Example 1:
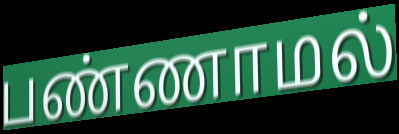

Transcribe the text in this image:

பண்ணாமல்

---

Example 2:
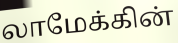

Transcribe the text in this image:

லாமேக்கின்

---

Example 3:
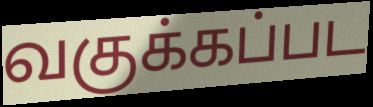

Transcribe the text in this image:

வகுக்கப்பட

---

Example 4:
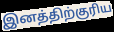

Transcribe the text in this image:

இனத்திற்குரிய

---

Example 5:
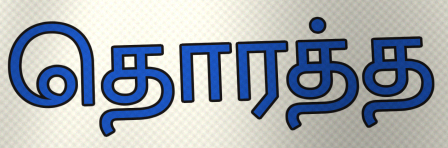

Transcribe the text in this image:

தொரத்த